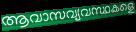
ആവാസവ്യവസ്ഥകളെ